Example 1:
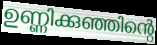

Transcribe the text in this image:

ഉണ്ണിക്കുഞ്ഞിന്റെ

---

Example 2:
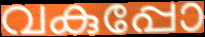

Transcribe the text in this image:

വകുപ്പോ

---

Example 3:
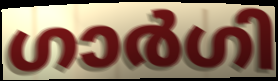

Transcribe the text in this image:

ഗാർഗി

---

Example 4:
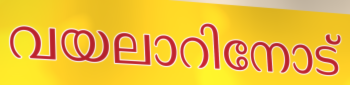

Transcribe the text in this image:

വയലാറിനോട്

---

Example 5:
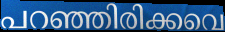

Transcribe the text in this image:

പറഞ്ഞിരിക്കവെ